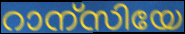
റാന്സിയേ